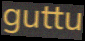
guttu